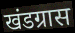
खंडग्रास